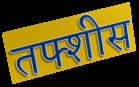
तफ्शीस